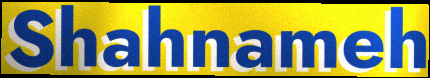
Shahnameh